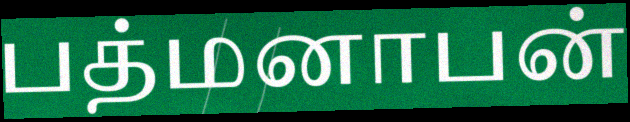
பத்மனாபன்